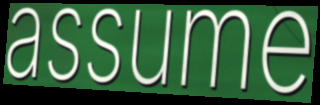
assume